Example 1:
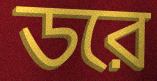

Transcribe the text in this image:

ডরে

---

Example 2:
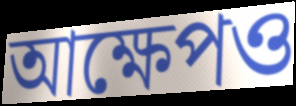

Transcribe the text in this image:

আক্ষেপও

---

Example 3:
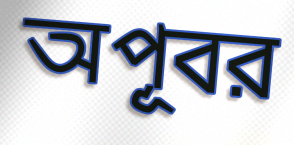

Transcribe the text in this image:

অপূবর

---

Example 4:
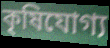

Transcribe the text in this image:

কৃষিযোগ্য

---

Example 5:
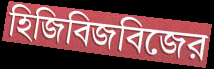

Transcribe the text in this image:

হিজিবিজবিজের